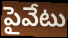
పైవేటు